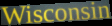
Wisconsin